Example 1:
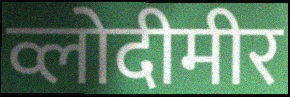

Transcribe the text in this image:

व्लोदीमीर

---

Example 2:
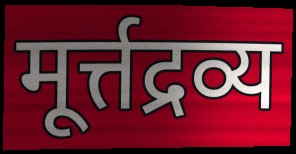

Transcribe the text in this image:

मूर्त्तद्रव्य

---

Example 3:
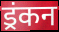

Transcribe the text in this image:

ड्रंकन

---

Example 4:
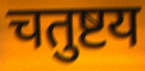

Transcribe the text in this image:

चतुष्टय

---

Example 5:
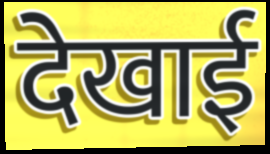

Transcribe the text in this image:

देखाई